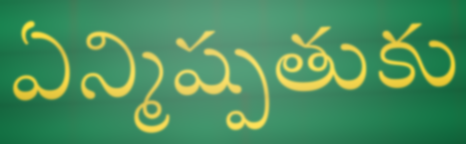
ఏన్మిష్పతుకు